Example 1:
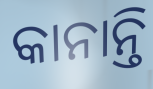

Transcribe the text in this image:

କାନାନ୍ତି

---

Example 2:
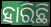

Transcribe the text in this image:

ହାରିଛି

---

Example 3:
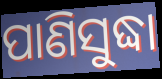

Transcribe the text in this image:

ପାଣିସୁଦ୍ଧା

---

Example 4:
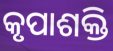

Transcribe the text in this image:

କୃପାଶକ୍ତି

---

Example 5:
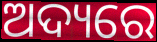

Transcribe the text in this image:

ଅଦ୍ୟରେ